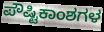
ಪೌಷ್ಟಿಕಾಂಶಗಳ